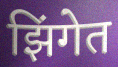
झिंगेत